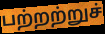
பற்றற்றுச்